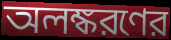
অলঙ্করণের